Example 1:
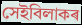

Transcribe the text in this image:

সেইবিলাকৰ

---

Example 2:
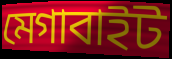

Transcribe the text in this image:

মেগাবাইট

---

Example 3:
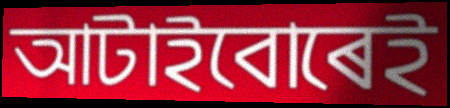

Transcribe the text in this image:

আটাইবোৰেই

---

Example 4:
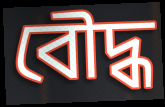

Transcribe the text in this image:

বৌদ্ধ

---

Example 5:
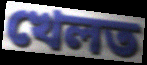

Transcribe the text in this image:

খেলত